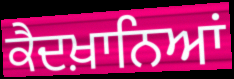
ਕੈਦਖ਼ਾਨਿਆਂ